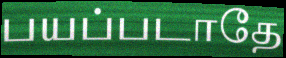
பயப்படாதே